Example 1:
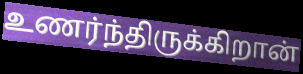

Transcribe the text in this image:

உணர்ந்திருக்கிறான்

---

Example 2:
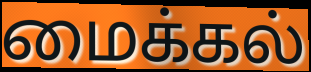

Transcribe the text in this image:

மைக்கல்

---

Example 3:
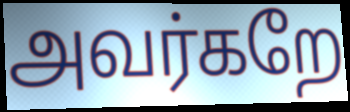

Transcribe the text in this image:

அவர்கறே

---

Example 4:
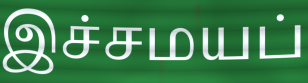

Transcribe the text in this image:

இச்சமயப்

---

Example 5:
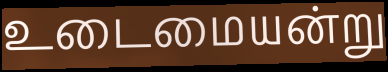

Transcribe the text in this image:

உடைமையன்று